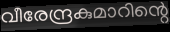
വീരേന്ദ്രകുമാറിന്റെ